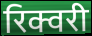
रिक्वरी